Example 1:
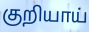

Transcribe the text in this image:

குறியாய்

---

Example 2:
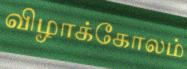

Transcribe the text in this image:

விழாக்கோலம்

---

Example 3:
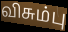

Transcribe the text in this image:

விசும்பு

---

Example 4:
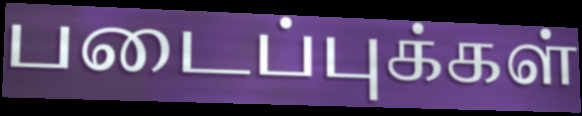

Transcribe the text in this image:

படைப்புக்கள்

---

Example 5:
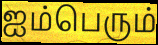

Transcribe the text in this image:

ஐம்பெரும்